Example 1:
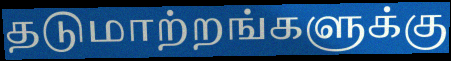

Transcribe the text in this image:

தடுமாற்றங்களுக்கு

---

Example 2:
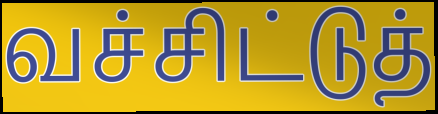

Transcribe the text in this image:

வச்சிட்டுத்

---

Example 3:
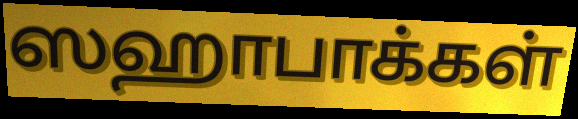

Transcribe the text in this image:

ஸஹாபாக்கள்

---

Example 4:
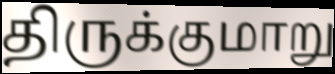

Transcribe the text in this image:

திருக்குமாறு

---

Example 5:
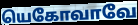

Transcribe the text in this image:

யெகோவாவே